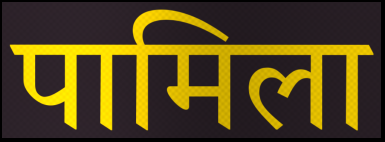
पामिला